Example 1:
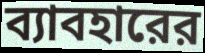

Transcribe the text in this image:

ব্যাবহারের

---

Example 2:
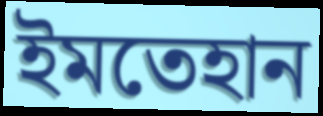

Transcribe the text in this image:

ইমতেহান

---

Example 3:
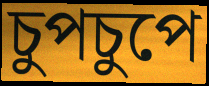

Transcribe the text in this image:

চুপচুপে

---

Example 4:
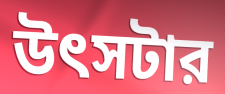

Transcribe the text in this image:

উৎসটার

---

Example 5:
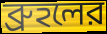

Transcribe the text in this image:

ব্রুহলের